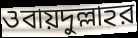
ওবায়দুল্লাহর